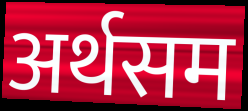
अर्थसम